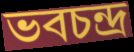
ভবচন্দ্র